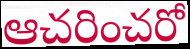
ఆచరించరో